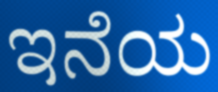
ಇನೆಯ